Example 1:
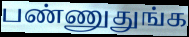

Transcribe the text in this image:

பண்ணுதுங்க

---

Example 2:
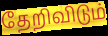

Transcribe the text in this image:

தேறிவிடும்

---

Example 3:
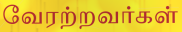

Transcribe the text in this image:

வேரற்றவர்கள்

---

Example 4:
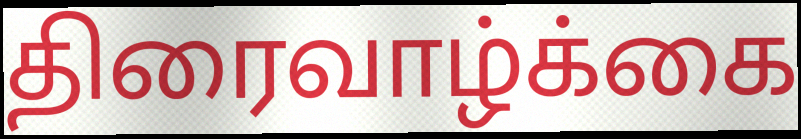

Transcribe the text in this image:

திரைவாழ்க்கை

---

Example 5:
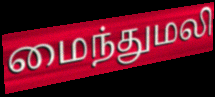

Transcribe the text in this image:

மைந்துமலி